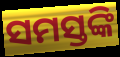
ସମସ୍ତଙ୍କି